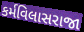
કર્મવિલાસરાજા